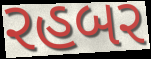
રહબર